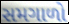
સમગાળો